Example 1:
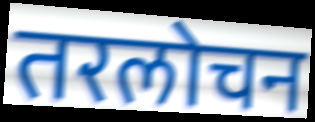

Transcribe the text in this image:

तरलोचन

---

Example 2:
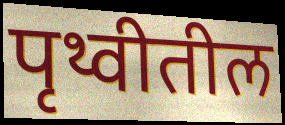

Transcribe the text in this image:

पृथ्वीतील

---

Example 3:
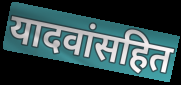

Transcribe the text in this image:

यादवांसहित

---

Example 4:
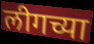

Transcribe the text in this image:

लीगच्या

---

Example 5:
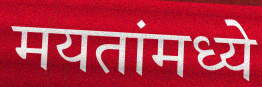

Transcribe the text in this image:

मयतांमध्ये